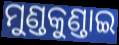
ମୁଣ୍ଡକୁଣ୍ଡାଇ